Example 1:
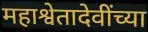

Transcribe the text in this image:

महाश्वेतादेवींच्या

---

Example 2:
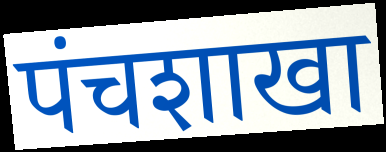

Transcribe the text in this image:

पंचशाखा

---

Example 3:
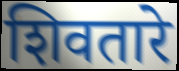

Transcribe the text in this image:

शिवतारे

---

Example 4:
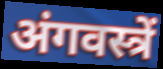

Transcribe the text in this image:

अंगवस्त्रें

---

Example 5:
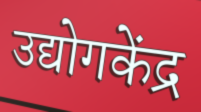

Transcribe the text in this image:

उद्योगकेंद्र